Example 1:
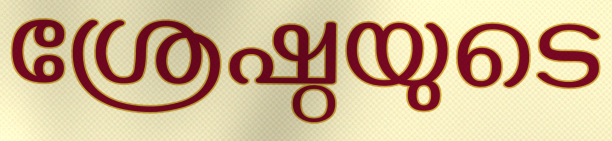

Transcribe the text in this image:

ശ്രേഷ്ഠയുടെ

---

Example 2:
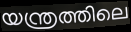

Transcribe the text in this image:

യന്ത്രത്തിലെ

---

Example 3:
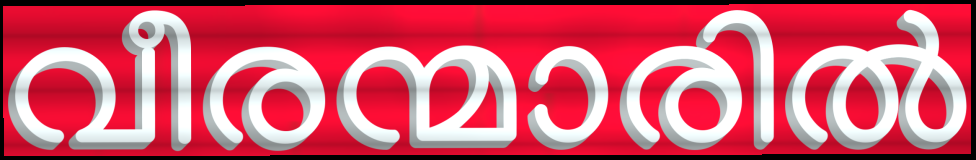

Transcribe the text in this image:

വീരന്മാരിൽ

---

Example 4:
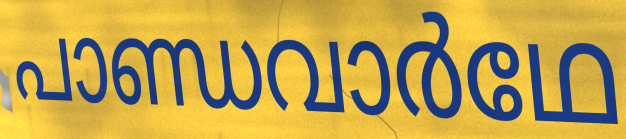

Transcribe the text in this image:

പാണ്ഡവാർഥേ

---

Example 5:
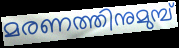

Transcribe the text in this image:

മരണത്തിനുമുമ്പ്